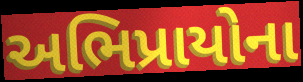
અભિપ્રાયોના